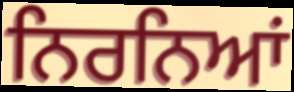
ਨਿਰਨਿਆਂ